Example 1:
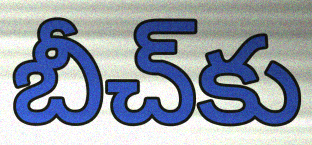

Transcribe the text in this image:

బీచ్‌కు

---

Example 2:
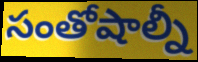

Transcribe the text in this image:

సంతోషాల్నీ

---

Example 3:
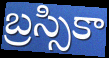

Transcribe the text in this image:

బ్రస్సికా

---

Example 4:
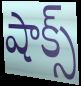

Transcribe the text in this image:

షాక్స్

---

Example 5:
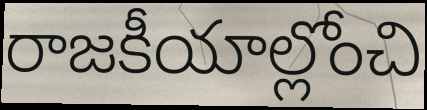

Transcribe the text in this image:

రాజకీయాల్లోంచి